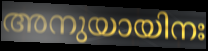
അനുയായിനഃ